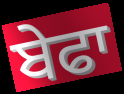
ਬੇਫਾ